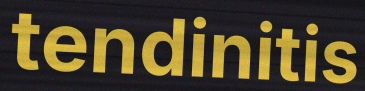
tendinitis